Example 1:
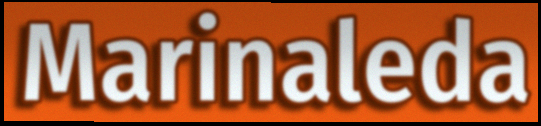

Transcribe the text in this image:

Marinaleda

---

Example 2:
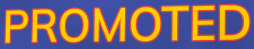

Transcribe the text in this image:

PROMOTED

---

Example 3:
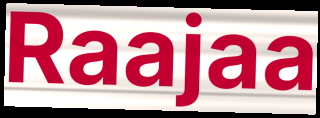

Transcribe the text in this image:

Raajaa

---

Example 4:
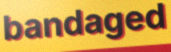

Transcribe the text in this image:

bandaged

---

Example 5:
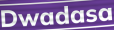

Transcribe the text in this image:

Dwadasa